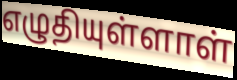
எழுதியுள்ளாள்